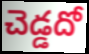
చెడ్డదో